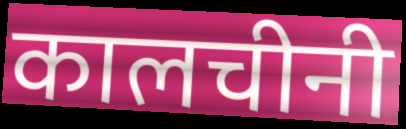
कालचीनी